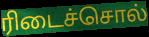
ரிடைச்சொல்